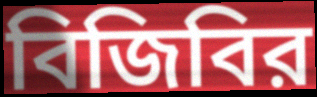
বিজিবির